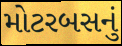
મોટરબસનું